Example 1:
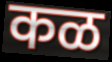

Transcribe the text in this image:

कळ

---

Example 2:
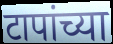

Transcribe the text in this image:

टापांच्या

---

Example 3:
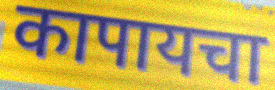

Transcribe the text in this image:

कापायचा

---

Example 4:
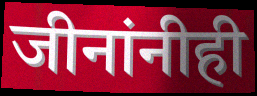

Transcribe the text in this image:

जीनांनीही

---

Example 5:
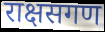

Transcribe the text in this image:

राक्षसगण